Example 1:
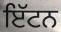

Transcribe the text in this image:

ਇੱਟਨ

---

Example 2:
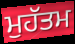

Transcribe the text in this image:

ਮੁਹੱਤਮ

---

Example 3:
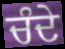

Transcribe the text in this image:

ਚੰਦੇ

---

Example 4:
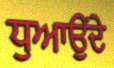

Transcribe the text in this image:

ਧੁਆਉਂਦੇ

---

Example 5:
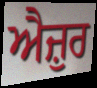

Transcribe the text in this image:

ਐਜ਼ੁਰ